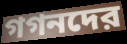
গগনদের